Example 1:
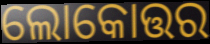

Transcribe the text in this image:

ଲୋକୋତ୍ତର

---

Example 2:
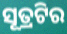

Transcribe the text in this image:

ସୂତ୍ରଟିର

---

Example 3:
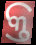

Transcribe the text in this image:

କ୍ତ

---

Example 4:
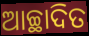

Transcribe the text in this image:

ଆଚ୍ଛାଦିତ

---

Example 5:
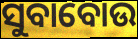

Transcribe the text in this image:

ସୁବାବୋଉ